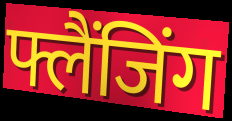
फ्लैंजिंग